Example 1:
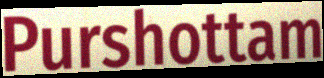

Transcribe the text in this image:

Purshottam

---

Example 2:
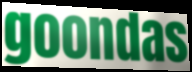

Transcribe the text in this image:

goondas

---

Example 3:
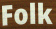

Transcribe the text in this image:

Folk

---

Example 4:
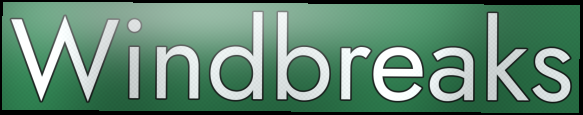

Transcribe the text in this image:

Windbreaks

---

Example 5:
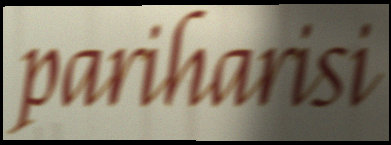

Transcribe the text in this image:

pariharisi